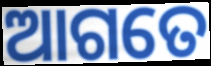
ଆଗତେ